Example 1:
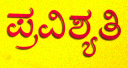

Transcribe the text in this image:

ಪ್ರವಿಶ್ಯತಿ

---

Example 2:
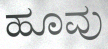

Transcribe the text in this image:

ಹೂವು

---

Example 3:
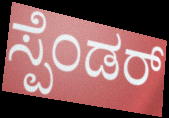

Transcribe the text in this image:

ಸ್ಪೆಂಡರ್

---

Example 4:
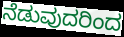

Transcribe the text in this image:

ನೆಡುವುದರಿಂದ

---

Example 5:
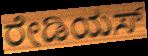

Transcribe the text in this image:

ರೇಡಿಯಸ್